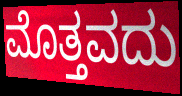
ಮೊತ್ತವದು